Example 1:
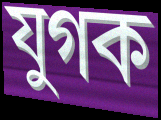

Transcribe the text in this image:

যুগক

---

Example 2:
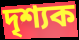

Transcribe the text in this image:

দৃশ্যক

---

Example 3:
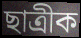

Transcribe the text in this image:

ছাত্ৰীক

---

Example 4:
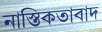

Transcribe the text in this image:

নাস্তিকতাবাদ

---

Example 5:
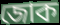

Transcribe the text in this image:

জোক